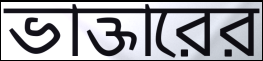
ভাক্তারের